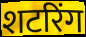
शटरिंग